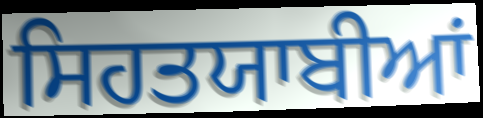
ਸਿਹਤਯਾਬੀਆਂ